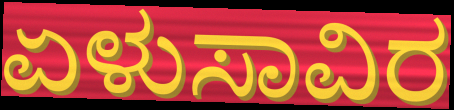
ಏಳುಸಾವಿರ